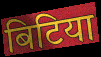
बिटिया